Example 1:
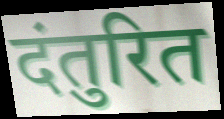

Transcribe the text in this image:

दंतुरित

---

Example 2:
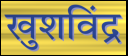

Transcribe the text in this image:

खुशविंद्र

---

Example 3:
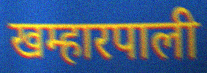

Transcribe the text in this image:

खम्हारपाली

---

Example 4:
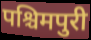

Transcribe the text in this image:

पश्चिमपुरी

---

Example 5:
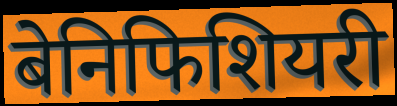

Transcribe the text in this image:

बेनिफिशियरी